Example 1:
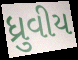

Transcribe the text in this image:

ધ્રુવીય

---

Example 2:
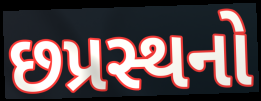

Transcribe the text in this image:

છપ્રસ્થનો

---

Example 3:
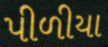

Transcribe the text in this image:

પીળીયા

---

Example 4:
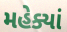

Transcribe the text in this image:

મહેક્યાં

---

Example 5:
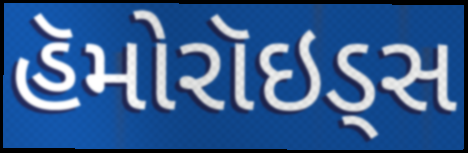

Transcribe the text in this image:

હૅમોરૉઇડ્સ